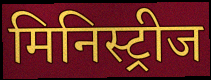
मिनिस्ट्रीज